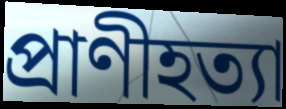
প্রাণীহত্যা